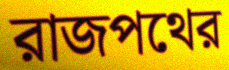
রাজপথের